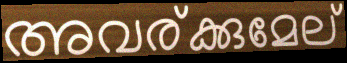
അവര്ക്കുമേല്